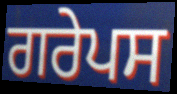
ਗਰੇਪਸ